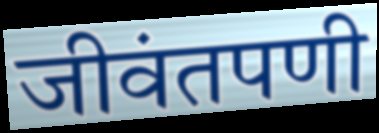
जीवंतपणी